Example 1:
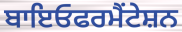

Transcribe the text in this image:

ਬਾਇਓਫਰਮੈਂਟੇਸ਼ਨ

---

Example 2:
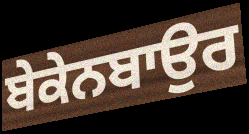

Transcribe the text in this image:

ਬੇਕੇਨਬਾਉਰ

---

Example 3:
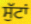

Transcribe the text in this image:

ਸੁੱਟਾਂ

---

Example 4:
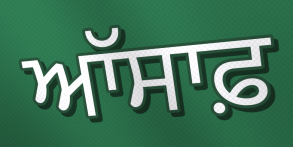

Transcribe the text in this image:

ਆੱਸਾਫ਼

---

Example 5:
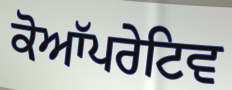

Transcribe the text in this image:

ਕੋਆੱਪਰੇਟਿਵ